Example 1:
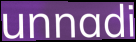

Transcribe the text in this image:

unnadi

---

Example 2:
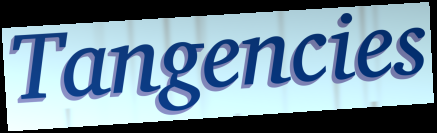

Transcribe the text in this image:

Tangencies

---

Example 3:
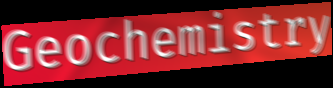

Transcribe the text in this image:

Geochemistry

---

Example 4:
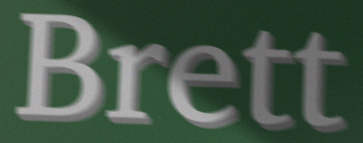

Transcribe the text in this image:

Brett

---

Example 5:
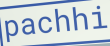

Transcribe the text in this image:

pachhi